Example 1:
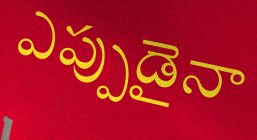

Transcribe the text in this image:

ఎప్పుడైనా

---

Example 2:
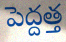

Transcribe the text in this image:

పెద్దత్త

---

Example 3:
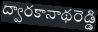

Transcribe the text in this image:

ద్వారకానాథరెడ్డి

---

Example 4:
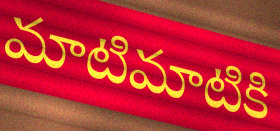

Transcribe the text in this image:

మాటిమాటికి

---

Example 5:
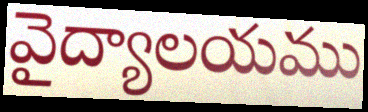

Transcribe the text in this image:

వైద్యాలయము